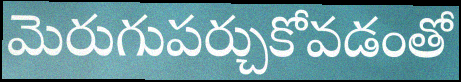
మెరుగుపర్చుకోవడంతో